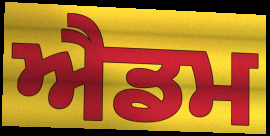
ਐਡਮ